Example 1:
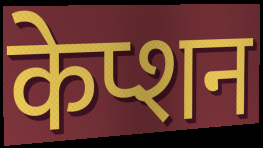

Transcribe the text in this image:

केप्शन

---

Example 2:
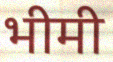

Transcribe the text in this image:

भीमी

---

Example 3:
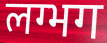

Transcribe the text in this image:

लग्भग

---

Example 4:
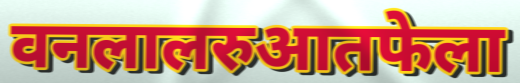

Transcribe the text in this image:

वनलालरुआतफेला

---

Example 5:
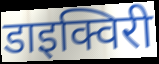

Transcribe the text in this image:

डाइक्विरी